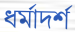
ধর্মাদর্শ